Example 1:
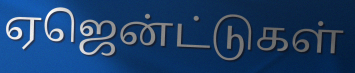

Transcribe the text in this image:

ஏஜென்ட்டுகள்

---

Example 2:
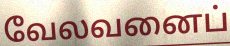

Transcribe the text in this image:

வேலவனைப்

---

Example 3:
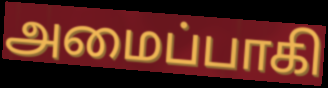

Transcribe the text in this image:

அமைப்பாகி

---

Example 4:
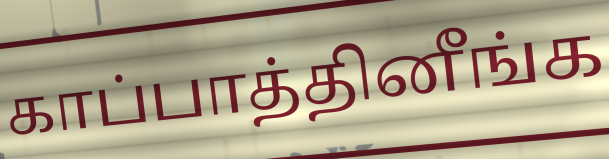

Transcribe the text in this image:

காப்பாத்தினீங்க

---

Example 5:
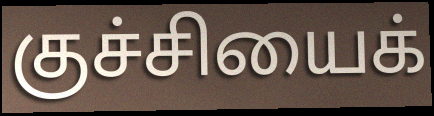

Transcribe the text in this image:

குச்சியைக்